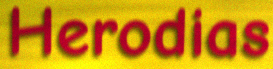
Herodias